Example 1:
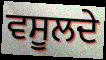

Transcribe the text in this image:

ਵਸੂਲਦੇ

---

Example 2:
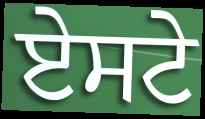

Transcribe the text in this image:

ਏਸਟੇ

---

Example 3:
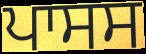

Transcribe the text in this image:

ਪਾਸਸ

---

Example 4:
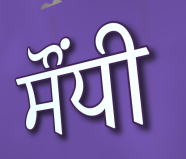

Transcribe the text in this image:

ਸੌਂਧੀ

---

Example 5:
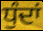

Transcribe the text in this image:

ਧੁੰਦਾਂ